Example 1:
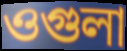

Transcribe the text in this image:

ওগুলা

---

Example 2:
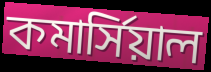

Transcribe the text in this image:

কমার্সিয়াল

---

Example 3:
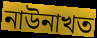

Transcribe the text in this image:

নাউনাখত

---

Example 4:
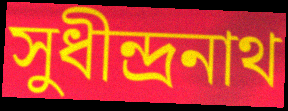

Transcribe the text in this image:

সুধীন্দ্রনাথ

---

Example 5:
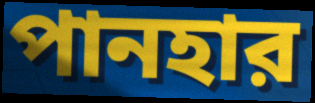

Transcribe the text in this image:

পানহার